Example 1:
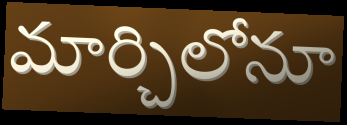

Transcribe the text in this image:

మార్చిలోనూ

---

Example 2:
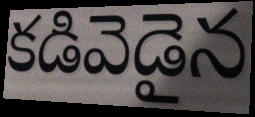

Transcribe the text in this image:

కడివెడైన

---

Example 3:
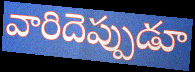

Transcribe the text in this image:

వారిదెప్పుడూ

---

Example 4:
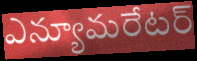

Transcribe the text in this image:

ఎన్యూమరేటర్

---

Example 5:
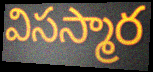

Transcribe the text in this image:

విసస్మార